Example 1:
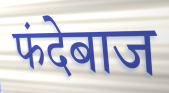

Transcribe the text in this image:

फंदेबाज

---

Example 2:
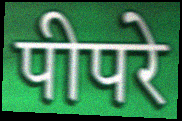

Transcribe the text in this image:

पीपरे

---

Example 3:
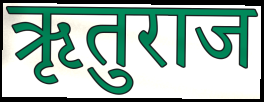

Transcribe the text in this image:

ऋृतुराज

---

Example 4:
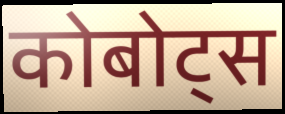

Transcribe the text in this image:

कोबोट्स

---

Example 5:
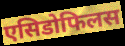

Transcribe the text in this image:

एसिडोफिलस